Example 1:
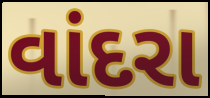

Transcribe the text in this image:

વાંદરા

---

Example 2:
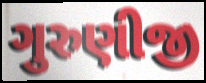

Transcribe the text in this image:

ગુરુણીજી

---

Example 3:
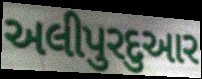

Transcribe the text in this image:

અલીપુરદુઆર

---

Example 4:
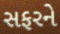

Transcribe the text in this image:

સફરને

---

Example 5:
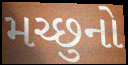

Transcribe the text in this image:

મચ્છુનો